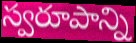
స్వరూపాన్ని